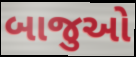
બાજુઓ